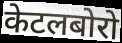
केटलबोरो